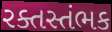
રક્તસ્તંભક